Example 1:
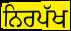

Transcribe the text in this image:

ਨਿਰਪੱਖ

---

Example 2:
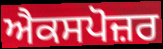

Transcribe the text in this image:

ਐਕਸਪੋਜ਼ਰ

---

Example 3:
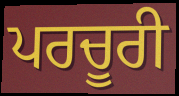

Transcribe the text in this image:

ਪਰਚੂਰੀ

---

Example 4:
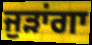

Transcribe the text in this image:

ਜੁੜਾਂਗਾ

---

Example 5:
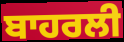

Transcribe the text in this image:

ਬਾਹਰਲੀ